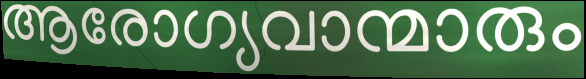
ആരോഗ്യവാന്മാരും